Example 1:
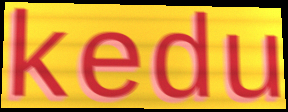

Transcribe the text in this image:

kedu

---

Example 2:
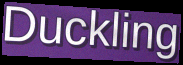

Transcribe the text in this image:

Duckling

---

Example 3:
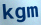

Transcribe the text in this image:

kgm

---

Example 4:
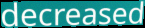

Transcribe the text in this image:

decreased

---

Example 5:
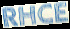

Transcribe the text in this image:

RHCE